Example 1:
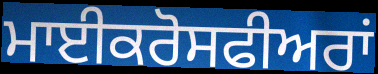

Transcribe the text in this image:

ਮਾਈਕਰੋਸਫੀਅਰਾਂ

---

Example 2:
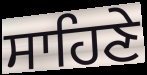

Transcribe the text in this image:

ਸਾਹਿਣੇ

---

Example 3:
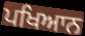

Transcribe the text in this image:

ਪਖਿਆਨ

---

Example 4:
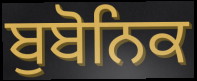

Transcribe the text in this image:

ਬੁਬੋਨਿਕ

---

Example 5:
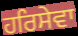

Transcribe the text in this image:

ਹਰਿਸੇਵਾ